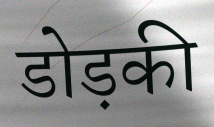
डोड़की